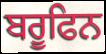
ਬਰੂਫਿਨ